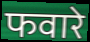
फवारे